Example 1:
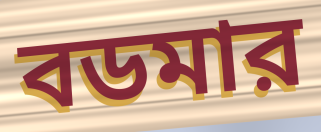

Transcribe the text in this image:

বডমার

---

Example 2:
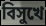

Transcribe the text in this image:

বিসুখে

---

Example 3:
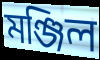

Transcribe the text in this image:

মঞ্জিল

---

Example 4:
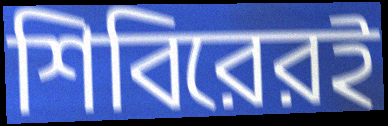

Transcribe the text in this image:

শিবিরেরই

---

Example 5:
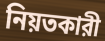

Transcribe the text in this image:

নিয়তকারী